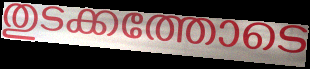
തുടക്കത്തോടെ